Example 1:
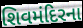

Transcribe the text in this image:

શિવમંદિરના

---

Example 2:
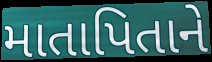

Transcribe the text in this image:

માતાપિતાને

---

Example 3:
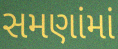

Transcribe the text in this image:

સમણાંમાં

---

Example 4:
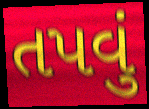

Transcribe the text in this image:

તપવું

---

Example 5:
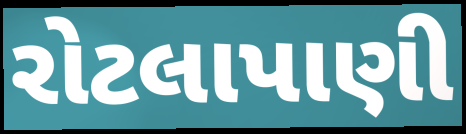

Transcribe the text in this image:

રોટલાપાણી